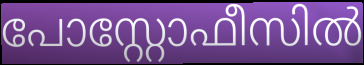
പോസ്റ്റോഫീസിൽ